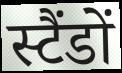
स्टैंडों